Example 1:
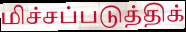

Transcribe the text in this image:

மிச்சப்படுத்திக்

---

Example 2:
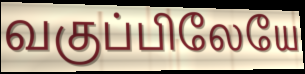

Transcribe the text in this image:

வகுப்பிலேயே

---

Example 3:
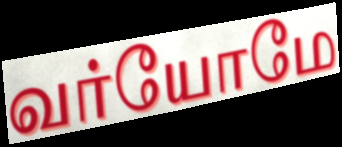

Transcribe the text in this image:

வர்யோமே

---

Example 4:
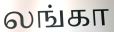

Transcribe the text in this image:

லங்கா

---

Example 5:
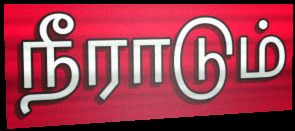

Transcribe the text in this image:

நீராடும்